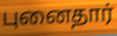
புனைதார்